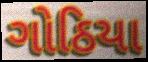
ગોઠિયા